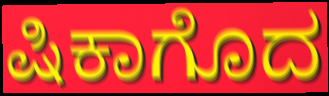
ಷಿಕಾಗೊದ